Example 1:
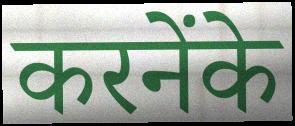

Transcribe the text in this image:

करनेंके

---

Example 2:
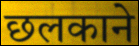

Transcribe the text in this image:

छलकाने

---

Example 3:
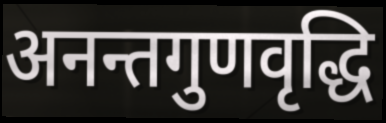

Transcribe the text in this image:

अनन्तगुणवृद्धि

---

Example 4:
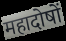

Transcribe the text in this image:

महादोषों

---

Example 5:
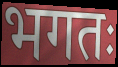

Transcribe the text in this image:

भगतः